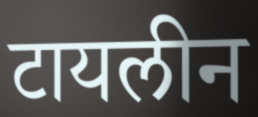
टायलीन